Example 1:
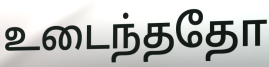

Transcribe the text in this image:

உடைந்ததோ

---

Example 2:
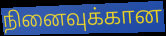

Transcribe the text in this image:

நினைவுக்கான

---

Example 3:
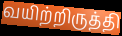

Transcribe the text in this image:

வயிற்றிருத்தி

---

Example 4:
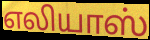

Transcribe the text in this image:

எலியாஸ்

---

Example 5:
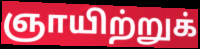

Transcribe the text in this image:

ஞாயிற்றுக்